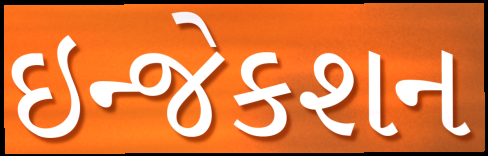
ઇન્જેકશન